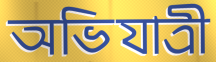
অভিযাত্রী